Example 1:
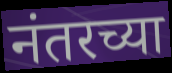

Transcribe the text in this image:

नंतरच्या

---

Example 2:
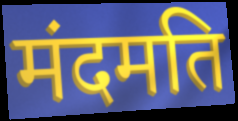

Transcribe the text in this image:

मंदमति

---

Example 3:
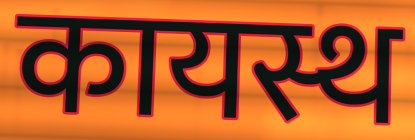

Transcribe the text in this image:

कायस्थ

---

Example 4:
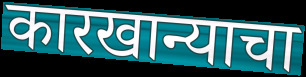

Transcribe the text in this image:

कारखान्याचा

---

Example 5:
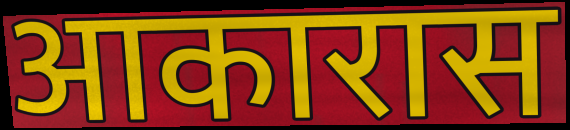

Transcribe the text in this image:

आकारास